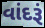
વાંદરૂં